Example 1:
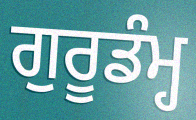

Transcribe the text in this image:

ਗੁਰੂਡੰਮ੍ਹ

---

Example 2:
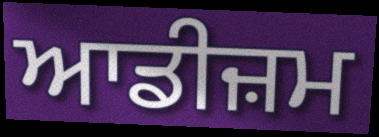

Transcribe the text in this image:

ਆਡੀਜ਼ਮ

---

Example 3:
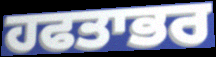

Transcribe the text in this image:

ਹਫਤਾਭਰ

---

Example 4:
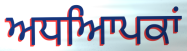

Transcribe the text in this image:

ਅਧਆਿਪਕਾਂ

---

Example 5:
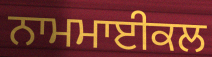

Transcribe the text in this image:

ਨਾਮਮਾਈਕਲ